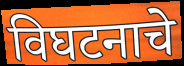
विघटनाचे